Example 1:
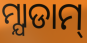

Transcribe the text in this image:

ମ୍ଯାଡାମ୍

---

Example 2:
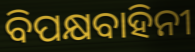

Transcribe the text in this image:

ବିପକ୍ଷବାହିନୀ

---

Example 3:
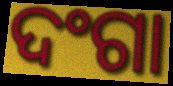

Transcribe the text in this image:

ଦଂଗା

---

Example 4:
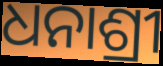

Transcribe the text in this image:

ଧନାଶ୍ରୀ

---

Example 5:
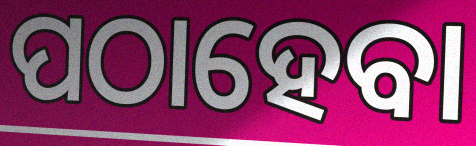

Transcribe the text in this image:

ପଠାହେବା